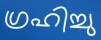
ഗ്രഹിച്ചു